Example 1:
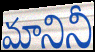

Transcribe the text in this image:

మానినీ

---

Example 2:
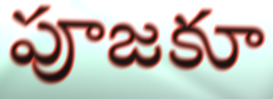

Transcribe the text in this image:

పూజకూ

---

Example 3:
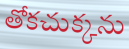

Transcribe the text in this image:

తోకచుక్కను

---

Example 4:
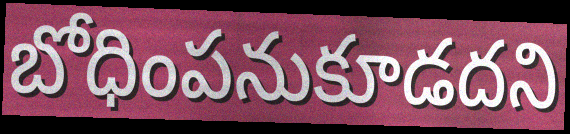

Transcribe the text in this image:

బోధింపనుకూడదని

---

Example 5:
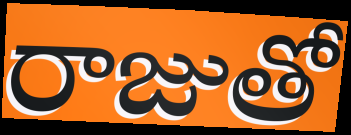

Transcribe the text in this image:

రాజుతో